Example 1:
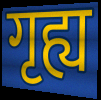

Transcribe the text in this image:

गृह्य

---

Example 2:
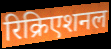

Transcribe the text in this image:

रिक्रिएशनल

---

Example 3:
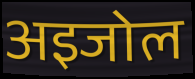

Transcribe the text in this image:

अइजोल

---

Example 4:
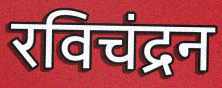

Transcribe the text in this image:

रविचंद्रन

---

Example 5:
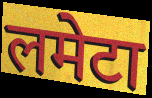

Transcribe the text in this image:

लमेटा